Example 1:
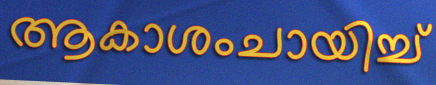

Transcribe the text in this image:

ആകാശംചായിച്ച്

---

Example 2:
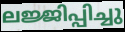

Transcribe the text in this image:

ലജ്ജിപ്പിച്ചു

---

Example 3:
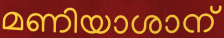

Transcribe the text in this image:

മണിയാശാന്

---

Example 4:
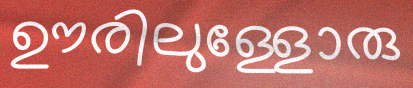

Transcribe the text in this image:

ഊരിലുള്ളോരു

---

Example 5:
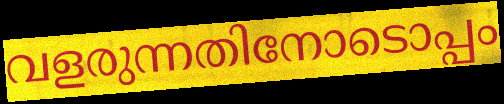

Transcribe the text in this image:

വളരുന്നതിനോടൊപ്പം